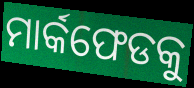
ମାର୍କଫେଡକୁ